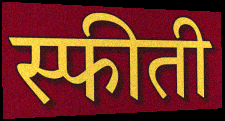
स्फीती